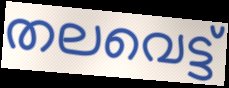
തലവെട്ട്